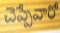
చెప్పేవారో